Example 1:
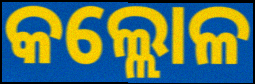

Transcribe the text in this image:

କଲ୍ଲୋଳ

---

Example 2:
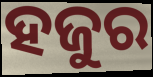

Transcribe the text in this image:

ହଜୁର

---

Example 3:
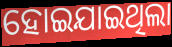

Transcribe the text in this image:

ହୋଇଯାଇଥିଲା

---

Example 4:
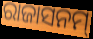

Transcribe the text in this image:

ରାଜାସନମ୍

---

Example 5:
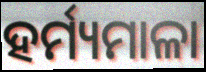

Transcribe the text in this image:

ହର୍ମ୍ୟମାଳା